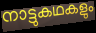
നാട്ടുകഥകളും